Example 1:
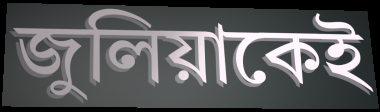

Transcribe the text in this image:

জুলিয়াকেই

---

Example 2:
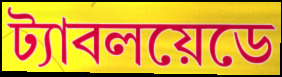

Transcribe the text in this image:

ট্যাবলয়েডে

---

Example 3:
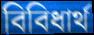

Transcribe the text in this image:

বিবিধার্থ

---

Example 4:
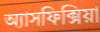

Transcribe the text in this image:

অ্যাসফিক্সিয়া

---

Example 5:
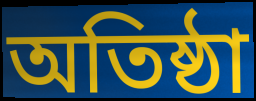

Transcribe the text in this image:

অতিষ্ঠা